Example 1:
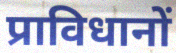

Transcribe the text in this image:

प्राविधानों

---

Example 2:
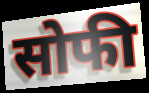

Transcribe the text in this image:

सोफी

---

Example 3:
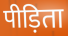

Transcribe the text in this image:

पीड़िता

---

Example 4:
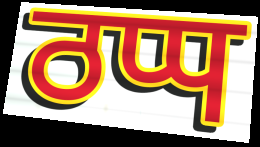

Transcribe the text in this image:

ठप्प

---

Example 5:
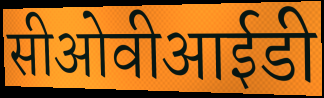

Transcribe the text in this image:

सीओवीआईडी